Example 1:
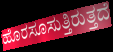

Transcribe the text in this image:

ಹೊರಸೂಸುತ್ತಿರುತ್ತದೆ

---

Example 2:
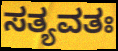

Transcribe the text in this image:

ಸತ್ಯವತಃ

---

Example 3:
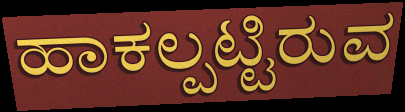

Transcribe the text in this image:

ಹಾಕಲ್ಪಟ್ಟಿರುವ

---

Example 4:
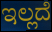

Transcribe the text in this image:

ಇಲ್ಲದೆ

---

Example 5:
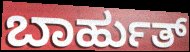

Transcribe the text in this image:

ಬಾರ್ಹುತ್